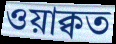
ওয়াক্বত